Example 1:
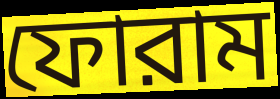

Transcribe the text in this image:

ফোরাম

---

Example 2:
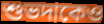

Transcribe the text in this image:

শুভদাকেও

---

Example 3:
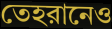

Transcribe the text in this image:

তেহরানেও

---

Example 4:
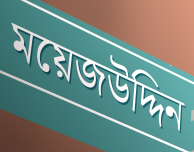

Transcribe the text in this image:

ময়েজউদ্দিন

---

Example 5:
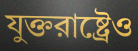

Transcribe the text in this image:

যুক্তরাষ্ট্রেও